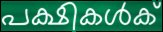
പക്ഷികൾക്